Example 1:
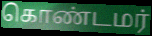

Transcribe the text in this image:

கொண்டமர்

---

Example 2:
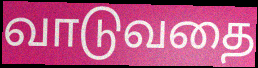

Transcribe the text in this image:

வாடுவதை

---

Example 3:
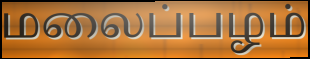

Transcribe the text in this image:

மலைப்பழம்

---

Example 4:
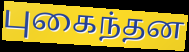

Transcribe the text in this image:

புகைந்தன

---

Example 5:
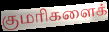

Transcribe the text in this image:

குமரிகளைக்